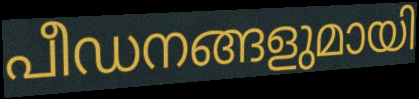
പീഡനങ്ങളുമായി